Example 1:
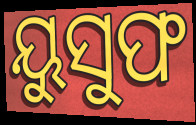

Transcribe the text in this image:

ୟୁସୁଫ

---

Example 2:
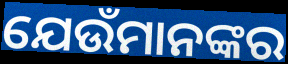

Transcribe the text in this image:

ଯେଉଁମାନଙ୍କର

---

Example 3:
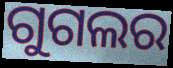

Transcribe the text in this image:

ଗୁଗଲର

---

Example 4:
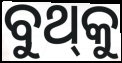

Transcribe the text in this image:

ବୁଥ୍‌କୁ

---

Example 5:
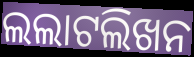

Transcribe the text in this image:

ଲଲାଟଲିଖନ